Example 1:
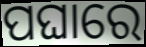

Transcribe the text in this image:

ପଘାରେ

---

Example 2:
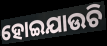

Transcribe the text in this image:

ହୋଇଯାଉଚି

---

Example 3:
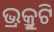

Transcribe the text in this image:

ଭ୍ର୍ରୁକୁଟି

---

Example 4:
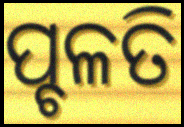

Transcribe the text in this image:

ପ୍ଚଳତି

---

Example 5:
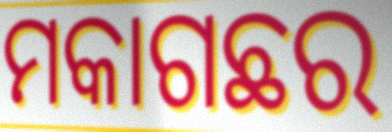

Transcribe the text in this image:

ମକାଗଛର